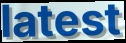
latest